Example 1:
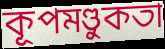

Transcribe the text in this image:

কূপমণ্ডুকতা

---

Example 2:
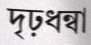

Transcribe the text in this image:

দৃঢ়ধন্বা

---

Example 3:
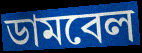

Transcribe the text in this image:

ডামবেল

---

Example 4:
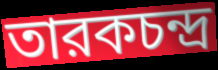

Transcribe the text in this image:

তারকচন্দ্র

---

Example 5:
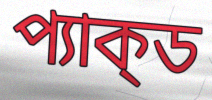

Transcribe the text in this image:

প্যাক্‌ড